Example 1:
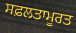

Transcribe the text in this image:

ਸਫ਼ਲਤਾਮੂਰਤ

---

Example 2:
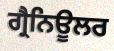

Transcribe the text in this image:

ਗ੍ਰੈਨਿਊਲਰ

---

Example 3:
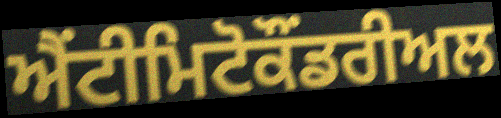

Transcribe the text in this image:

ਐਂਟੀਮਿਟੋਕੌਂਡਰੀਅਲ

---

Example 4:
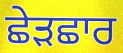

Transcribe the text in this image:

ਛੇੜਛਾਰ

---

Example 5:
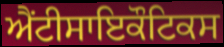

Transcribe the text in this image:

ਐਂਟੀਸਾਇਕੌਟਿਕਸ